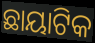
ଛାୟାଟିକ